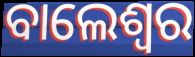
ବାଲେଶ୍ବର